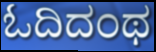
ಓದಿದಂಥ